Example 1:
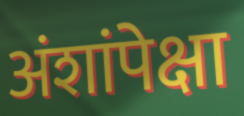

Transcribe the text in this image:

अंशांपेक्षा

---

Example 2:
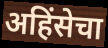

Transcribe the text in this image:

अहिंसेचा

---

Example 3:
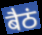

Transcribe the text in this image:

बैठं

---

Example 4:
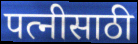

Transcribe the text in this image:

पत्नीसाठी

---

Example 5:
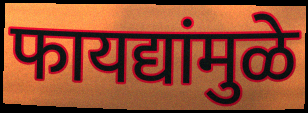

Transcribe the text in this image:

फायद्यांमुळे